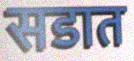
सडात